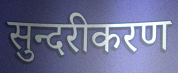
सुन्दरीकरण